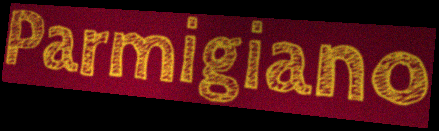
Parmigiano